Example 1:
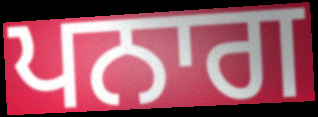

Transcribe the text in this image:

ਪਨਾਗ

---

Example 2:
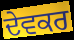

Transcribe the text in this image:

ਦੇਵਕਰ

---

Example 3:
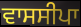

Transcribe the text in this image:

ਵਾਸਸੀਪਾ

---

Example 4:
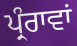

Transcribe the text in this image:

ਪ੍ਰੰਰਾਵਾਂ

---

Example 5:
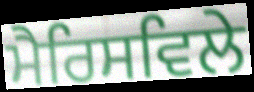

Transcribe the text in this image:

ਮੈਰਿਸਵਿਲੇ